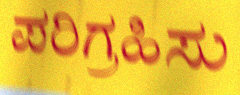
ಪರಿಗ್ರಹಿಸು